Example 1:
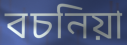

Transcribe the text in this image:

বচনিয়া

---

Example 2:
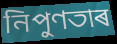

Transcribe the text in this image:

নিপুণতাৰ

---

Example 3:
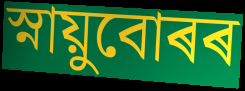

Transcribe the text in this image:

স্নায়ুবোৰৰ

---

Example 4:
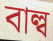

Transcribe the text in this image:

বাল্ব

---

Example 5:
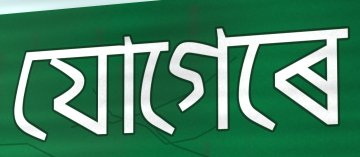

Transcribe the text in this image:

যোগেৰে